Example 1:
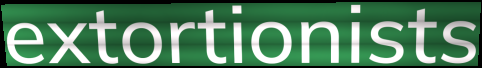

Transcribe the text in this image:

extortionists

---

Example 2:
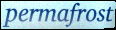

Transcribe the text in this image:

permafrost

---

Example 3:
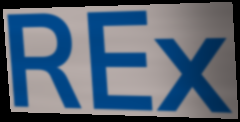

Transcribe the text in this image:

REx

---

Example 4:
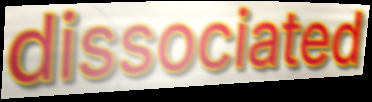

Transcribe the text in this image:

dissociated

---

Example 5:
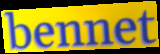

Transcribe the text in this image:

bennet